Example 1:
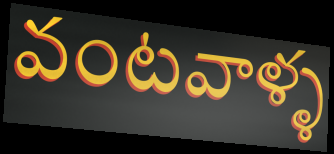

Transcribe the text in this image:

వంటవాళ్ళ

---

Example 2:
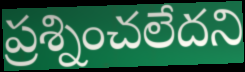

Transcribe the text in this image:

ప్రశ్నించలేదని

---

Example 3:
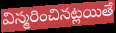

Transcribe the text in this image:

విస్మరించినట్లయితే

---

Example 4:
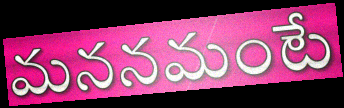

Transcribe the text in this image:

మననమంటే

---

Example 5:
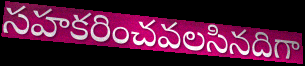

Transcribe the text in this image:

సహకరించవలసినదిగా